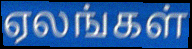
ஏலங்கள்